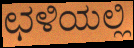
ಛಳಿಯಲ್ಲಿ